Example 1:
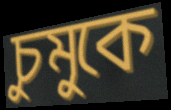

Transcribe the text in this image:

চুমুকে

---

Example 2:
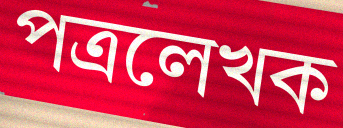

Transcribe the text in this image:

পত্রলেখক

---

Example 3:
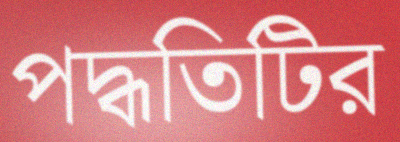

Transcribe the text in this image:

পদ্ধতিটির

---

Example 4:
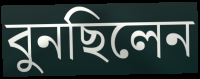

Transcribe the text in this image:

বুনছিলেন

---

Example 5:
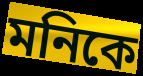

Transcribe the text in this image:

মনিকে